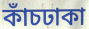
কাঁচঢাকা